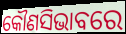
କୌଣସିଭାବରେ